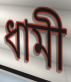
ধামী